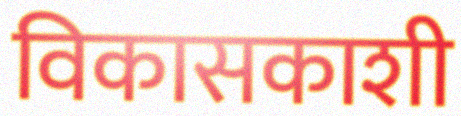
विकासकाशी